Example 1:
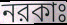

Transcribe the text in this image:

নরকাঃ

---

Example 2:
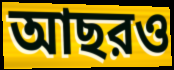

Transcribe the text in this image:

আছরও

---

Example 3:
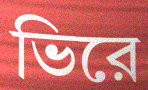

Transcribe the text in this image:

ভিরে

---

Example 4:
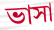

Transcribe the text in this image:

ভাসা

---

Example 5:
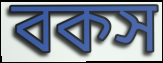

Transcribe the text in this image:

বকস